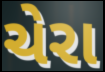
ચેરા